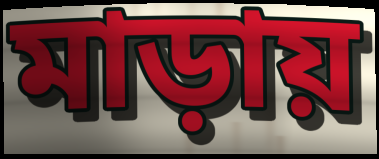
মাড়ায়